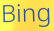
Bing